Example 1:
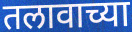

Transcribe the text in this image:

तलावाच्या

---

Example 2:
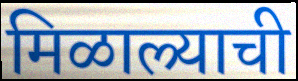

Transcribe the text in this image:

मिळाल्याची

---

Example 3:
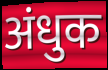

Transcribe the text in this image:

अंधुक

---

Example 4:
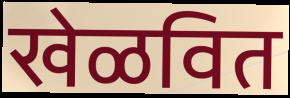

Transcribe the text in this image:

खेळवित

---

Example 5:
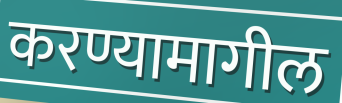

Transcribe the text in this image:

करण्यामागील